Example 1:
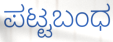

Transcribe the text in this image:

ಪಟ್ಟಬಂಧ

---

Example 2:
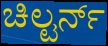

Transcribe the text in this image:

ಚಿಲ್ಟರ್ನ್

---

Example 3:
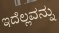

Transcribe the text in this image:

ಇದೆಲ್ಲವನ್ನು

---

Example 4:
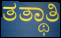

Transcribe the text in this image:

ತತ್ಥಾತಿ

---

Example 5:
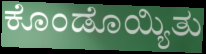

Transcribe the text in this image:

ಕೊಂಡೊಯ್ಯಿತು